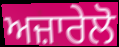
ਅਜ਼ਾਰੇਲੋ